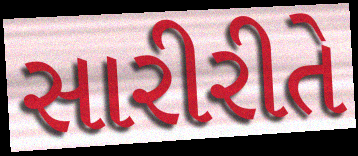
સારીરીતે